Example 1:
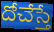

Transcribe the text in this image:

దోచేస్తే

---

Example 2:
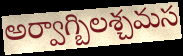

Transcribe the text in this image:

అర్వాగ్బిలశ్చమస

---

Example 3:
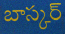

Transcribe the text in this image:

బాస్కర్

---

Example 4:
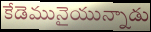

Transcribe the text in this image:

కేడెమునైయున్నాడు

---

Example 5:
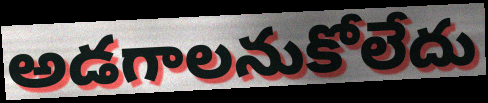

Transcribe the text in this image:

అడగాలనుకోలేదు